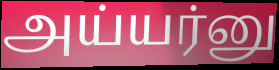
அய்யர்னு